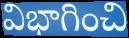
విభాగించి